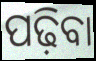
ପଢ଼ିବା